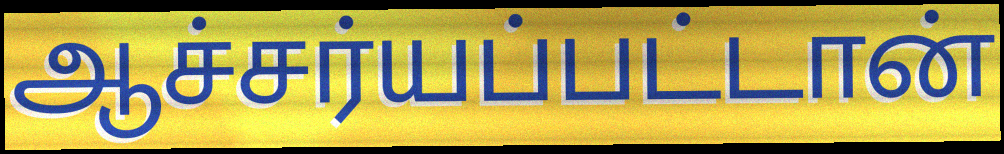
ஆச்சர்யப்பட்டான்